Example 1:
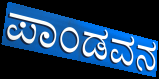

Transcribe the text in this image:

ಪಾಂಡವನ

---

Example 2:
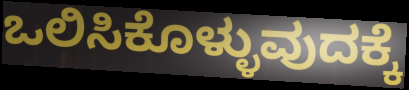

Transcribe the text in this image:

ಒಲಿಸಿಕೊಳ್ಳುವುದಕ್ಕೆ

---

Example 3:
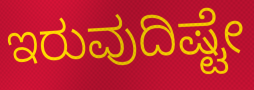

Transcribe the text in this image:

ಇರುವುದಿಷ್ಟೇ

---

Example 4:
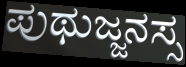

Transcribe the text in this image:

ಪುಥುಜ್ಜನಸ್ಸ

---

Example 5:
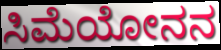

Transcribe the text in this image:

ಸಿಮೆಯೋನನ